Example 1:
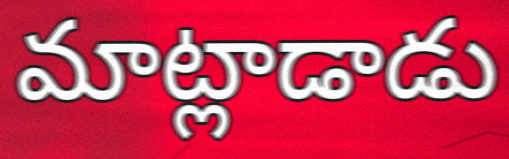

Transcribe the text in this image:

మాట్లాడాడు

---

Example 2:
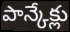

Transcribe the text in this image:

పాన్కేక్లు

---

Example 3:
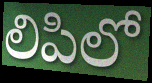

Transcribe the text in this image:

లిపిలో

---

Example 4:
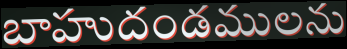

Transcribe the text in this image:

బాహుదండములను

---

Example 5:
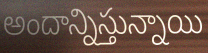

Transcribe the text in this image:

అందాన్నిస్తున్నాయి